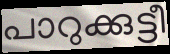
പാറുക്കുട്ടീ